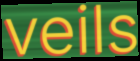
veils